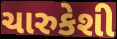
ચારુકેશી